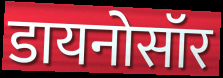
डायनोसॉर